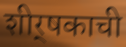
शीर्षकाची